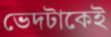
ভেদটাকেই